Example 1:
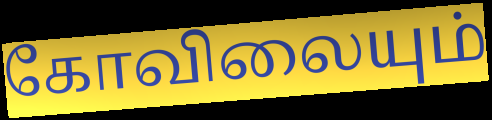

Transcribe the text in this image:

கோவிலையும்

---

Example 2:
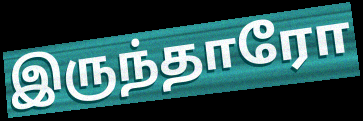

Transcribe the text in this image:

இருந்தாரோ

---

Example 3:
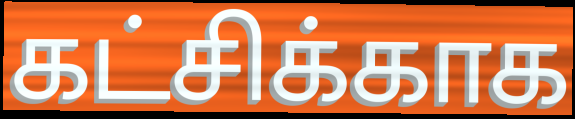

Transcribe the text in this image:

கட்சிக்காக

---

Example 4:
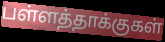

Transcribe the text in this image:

பள்ளத்தாக்குகள்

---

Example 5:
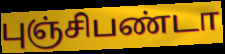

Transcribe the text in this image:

புஞ்சிபண்டா